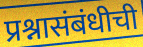
प्रश्नासंबंधीची